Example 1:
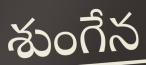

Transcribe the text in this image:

శుంగేన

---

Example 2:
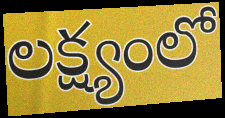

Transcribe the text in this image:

లక్ష్యంలో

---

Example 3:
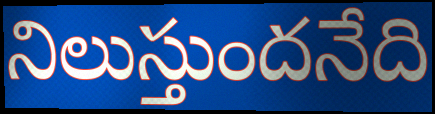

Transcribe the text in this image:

నిలుస్తుందనేది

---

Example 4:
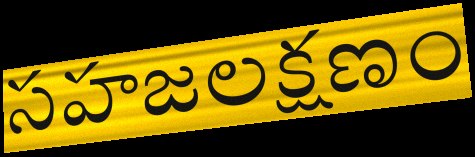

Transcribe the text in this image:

సహజలక్షణం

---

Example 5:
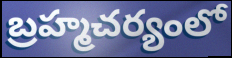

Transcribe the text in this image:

బ్రహ్మచర్యంలో